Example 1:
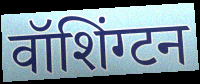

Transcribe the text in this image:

वॉशिंग्टन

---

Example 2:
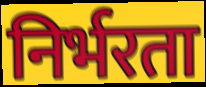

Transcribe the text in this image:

निर्भरता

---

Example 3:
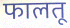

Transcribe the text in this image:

फालतू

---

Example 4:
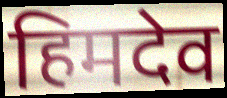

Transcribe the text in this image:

हिमदेव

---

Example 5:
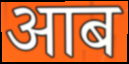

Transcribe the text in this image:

आब